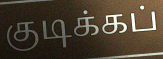
குடிக்கப்